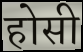
होसी